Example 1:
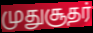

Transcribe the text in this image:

முதுசூதர்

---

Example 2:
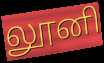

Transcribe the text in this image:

லூனி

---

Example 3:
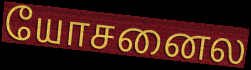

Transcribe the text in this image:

யோசனைல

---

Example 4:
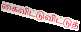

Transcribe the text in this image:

கைவிட்டுவிட்டுத்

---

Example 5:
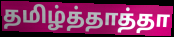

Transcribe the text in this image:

தமிழ்த்தாத்தா